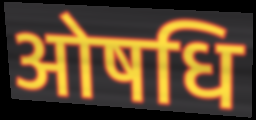
ओषधि